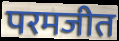
परमजीत